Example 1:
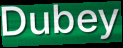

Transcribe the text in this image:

Dubey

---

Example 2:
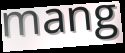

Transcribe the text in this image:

mang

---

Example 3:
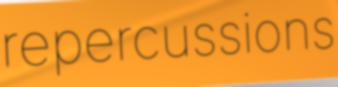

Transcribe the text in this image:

repercussions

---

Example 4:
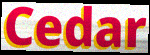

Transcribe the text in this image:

Cedar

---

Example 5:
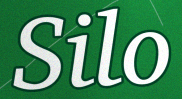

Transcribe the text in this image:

Silo